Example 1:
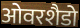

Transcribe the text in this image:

ओवरशैडो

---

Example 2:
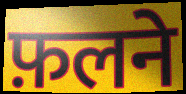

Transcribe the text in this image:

फ़लने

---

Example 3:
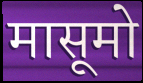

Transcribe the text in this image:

मासूमो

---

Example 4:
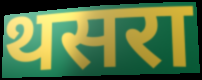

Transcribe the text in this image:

थसरा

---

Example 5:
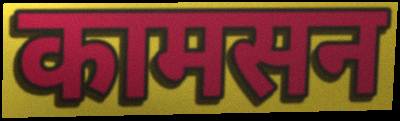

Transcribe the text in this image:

कामसन